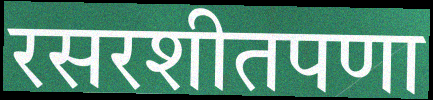
रसरशीतपणा